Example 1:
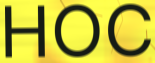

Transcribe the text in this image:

HOC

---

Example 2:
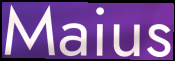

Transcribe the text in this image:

Maius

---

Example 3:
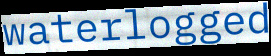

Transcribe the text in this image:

waterlogged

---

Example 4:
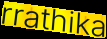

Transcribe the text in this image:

rrathika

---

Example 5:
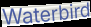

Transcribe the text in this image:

Waterbird